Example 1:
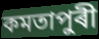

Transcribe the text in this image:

কমতাপুৰী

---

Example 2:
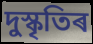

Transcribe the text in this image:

দুস্কৃতিৰ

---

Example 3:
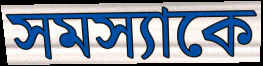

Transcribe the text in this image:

সমস্যাকে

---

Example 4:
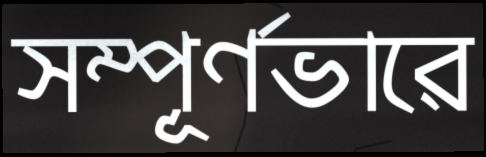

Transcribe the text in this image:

সম্পূৰ্ণভাৱে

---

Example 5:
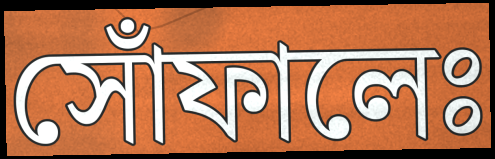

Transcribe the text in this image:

সোঁফালেঃ